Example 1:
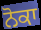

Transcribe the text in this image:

ਨੋਕਾ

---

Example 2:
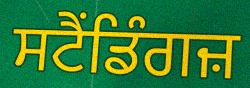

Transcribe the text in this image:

ਸਟੈਂਡਿੰਗਜ਼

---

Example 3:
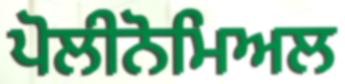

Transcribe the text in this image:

ਪੋਲੀਨੋਮਿਅਲ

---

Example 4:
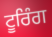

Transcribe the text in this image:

ਟੂਰਿੰਗ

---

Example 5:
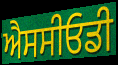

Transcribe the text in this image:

ਐਸਸੀਓਡੀ